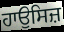
ਹਾਉਸਿਜ਼